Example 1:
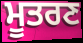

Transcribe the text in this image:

ਮੂਤਰਣ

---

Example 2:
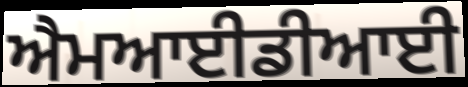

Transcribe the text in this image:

ਐਮਆਈਡੀਆਈ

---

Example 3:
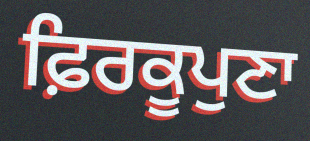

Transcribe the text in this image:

ਫ਼ਿਰਕੂਪੁਣਾ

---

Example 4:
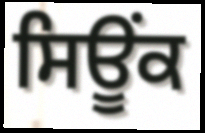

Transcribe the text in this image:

ਸਿਊਂਕ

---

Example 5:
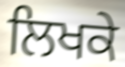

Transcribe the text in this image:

ਲਿਖਕੇ